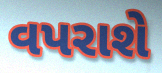
વપરાશે